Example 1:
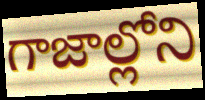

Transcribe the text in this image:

గాజాల్లోని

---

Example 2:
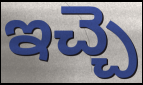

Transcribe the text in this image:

ఇచ్చె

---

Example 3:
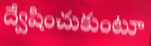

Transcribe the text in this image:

ద్వేషించుకుంటూ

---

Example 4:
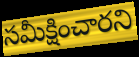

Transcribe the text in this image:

సమీక్షించారని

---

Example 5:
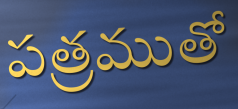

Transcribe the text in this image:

పత్రముతో